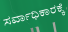
ಸರ್ವಾಧಿಕಾರಕ್ಕೆ